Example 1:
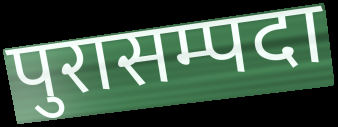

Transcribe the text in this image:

पुरासम्पदा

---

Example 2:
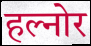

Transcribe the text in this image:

हल्नोर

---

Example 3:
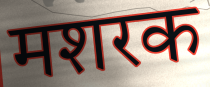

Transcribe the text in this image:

मशरक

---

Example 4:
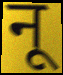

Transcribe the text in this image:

नू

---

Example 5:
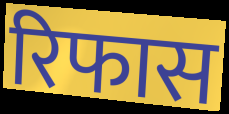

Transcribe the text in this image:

रिफास